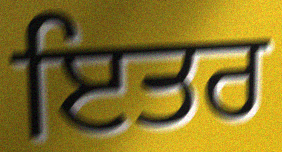
ਇਤਰ